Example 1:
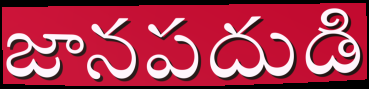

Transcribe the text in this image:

జానపదుడి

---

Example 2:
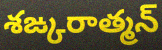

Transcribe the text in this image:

శఙ్కరాత్మన్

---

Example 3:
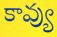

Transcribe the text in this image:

కావ్యు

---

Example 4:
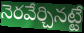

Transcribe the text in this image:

నెరవేర్చినట్టే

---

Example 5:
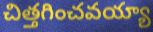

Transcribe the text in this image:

చిత్తగించవయ్యా